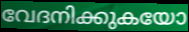
വേദനിക്കുകയോ